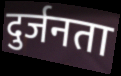
दुर्जनता